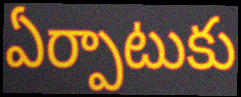
ఏర్పాటుకు